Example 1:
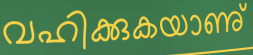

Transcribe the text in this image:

വഹിക്കുകയാണു്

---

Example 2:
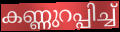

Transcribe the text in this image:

കണ്ണുറപ്പിച്ച്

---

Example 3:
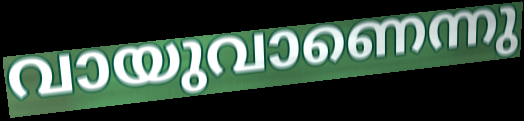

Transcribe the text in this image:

വായുവാണെന്നു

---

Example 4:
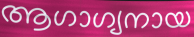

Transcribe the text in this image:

ആഗാഗ്യനായ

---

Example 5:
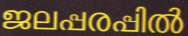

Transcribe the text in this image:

ജലപ്പരപ്പിൽ